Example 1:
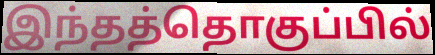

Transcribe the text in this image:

இந்தத்தொகுப்பில்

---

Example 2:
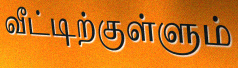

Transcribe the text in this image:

வீட்டிற்குள்ளும்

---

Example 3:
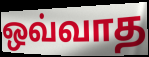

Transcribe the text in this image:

ஒவ்வாத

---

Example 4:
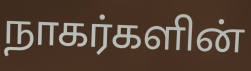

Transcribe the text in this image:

நாகர்களின்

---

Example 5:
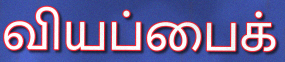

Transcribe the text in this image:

வியப்பைக்